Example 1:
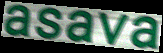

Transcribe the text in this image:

asava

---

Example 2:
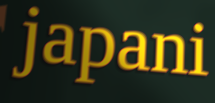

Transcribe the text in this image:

japani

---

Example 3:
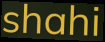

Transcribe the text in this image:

shahi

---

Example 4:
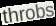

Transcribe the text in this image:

throbs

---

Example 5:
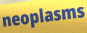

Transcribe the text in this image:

neoplasms